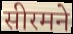
सीरमने